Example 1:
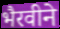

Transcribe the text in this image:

भैरवीने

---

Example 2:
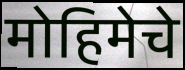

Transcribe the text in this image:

मोहिमेचे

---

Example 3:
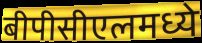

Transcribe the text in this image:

बीपीसीएलमध्ये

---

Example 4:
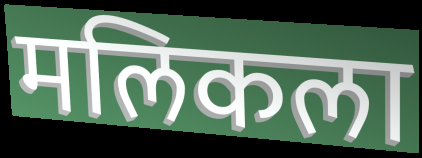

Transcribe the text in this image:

मलिकला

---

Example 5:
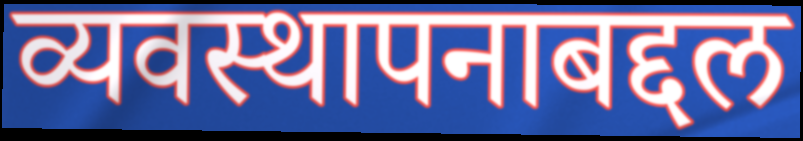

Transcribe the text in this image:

व्यवस्थापनाबद्दल